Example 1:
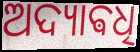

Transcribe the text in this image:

ଅଦ୍ୟାଵଧି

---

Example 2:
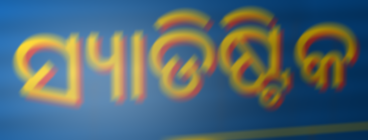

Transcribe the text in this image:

ସ୍ୟାଡିଷ୍ଟିକ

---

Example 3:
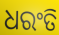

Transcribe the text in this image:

ଧରଂତି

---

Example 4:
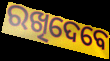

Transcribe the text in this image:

ରଖିଦେବେ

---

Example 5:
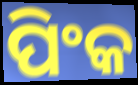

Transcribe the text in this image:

ପିଂକ